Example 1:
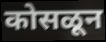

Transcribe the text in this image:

कोसळून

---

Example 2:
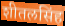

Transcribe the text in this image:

शीतलसिंह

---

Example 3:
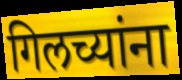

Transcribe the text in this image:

गिलच्यांना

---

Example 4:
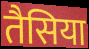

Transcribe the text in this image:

तैसिया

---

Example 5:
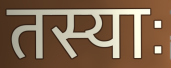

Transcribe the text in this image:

तस्याः